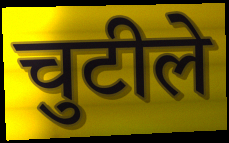
चुटीले